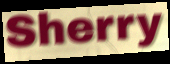
Sherry